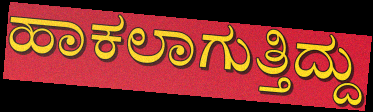
ಹಾಕಲಾಗುತ್ತಿದ್ದು